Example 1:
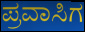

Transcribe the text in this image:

ಪ್ರವಾಸಿಗ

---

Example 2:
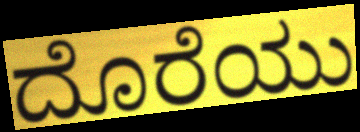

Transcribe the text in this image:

ದೊರೆಯು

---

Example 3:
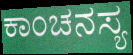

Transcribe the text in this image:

ಕಾಂಚನಸ್ಯ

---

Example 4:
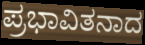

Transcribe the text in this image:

ಪ್ರಭಾವಿತನಾದ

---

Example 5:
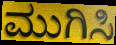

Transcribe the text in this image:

ಮುಗಿಸಿ